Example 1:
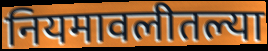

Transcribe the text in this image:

नियमावलीतल्या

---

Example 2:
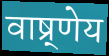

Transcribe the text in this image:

वाष्र्णेय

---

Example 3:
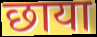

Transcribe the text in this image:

छाया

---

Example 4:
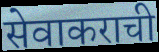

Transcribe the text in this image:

सेवाकराची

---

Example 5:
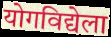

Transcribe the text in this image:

योगविद्येला